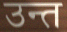
उन्त